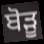
ਬੋੜੂ